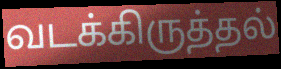
வடக்கிருத்தல்